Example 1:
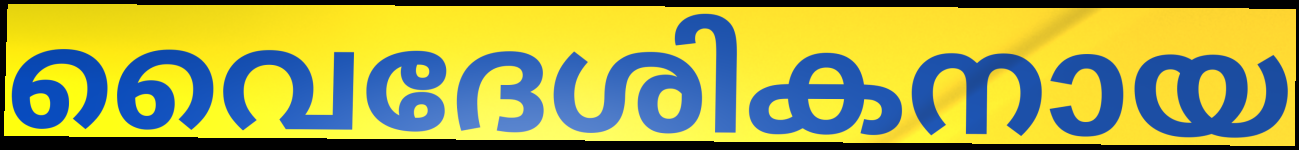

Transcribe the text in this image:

വൈദേശികനായ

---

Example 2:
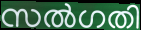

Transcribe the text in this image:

സൽഗതി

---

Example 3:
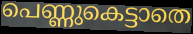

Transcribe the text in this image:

പെണ്ണുകെട്ടാതെ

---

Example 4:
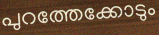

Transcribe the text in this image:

പുറത്തേക്കോടും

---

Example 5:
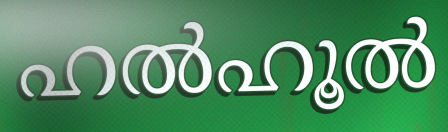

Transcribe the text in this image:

ഹൽഹൂൽ